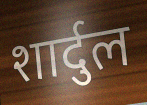
शार्दुल